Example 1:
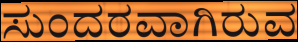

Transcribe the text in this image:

ಸುಂದರವಾಗಿರುವ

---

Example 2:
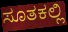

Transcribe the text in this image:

ಸೂತಕಲ್ಲಿ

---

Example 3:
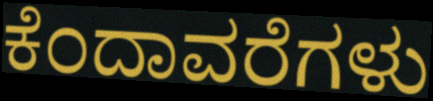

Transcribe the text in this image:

ಕೆಂದಾವರೆಗಳು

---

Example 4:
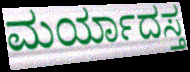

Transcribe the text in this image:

ಮರ್ಯಾದಸ್ತ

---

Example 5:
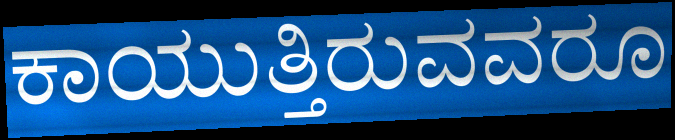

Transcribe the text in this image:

ಕಾಯುತ್ತಿರುವವರೂ